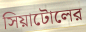
সিয়াটোলের